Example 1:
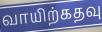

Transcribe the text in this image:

வாயிற்கதவு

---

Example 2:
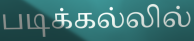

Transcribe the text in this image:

படிக்கல்லில்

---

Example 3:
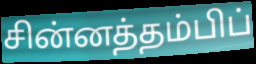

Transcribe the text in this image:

சின்னத்தம்பிப்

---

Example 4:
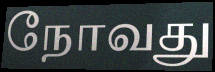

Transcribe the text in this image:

நோவது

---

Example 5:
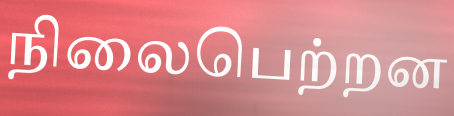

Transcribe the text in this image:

நிலைபெற்றன